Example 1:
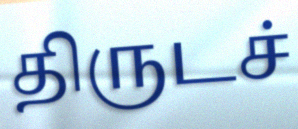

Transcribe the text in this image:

திருடச்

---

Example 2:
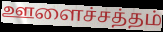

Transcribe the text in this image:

ஊளைச்சத்தம்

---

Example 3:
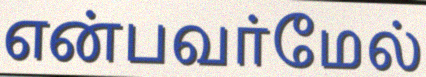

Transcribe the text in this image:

என்பவர்மேல்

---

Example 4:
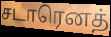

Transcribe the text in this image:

சடாரெனத்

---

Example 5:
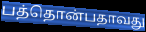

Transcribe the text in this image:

பத்தொன்பதாவது